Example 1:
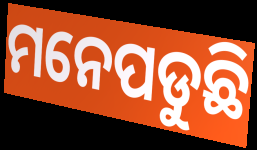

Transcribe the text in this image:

ମନେପଡୁଛି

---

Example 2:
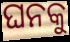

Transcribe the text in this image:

ଘନକୁ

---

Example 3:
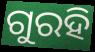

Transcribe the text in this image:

ଗୁରହି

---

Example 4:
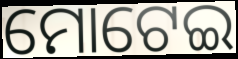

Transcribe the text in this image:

ମୋଟେଇ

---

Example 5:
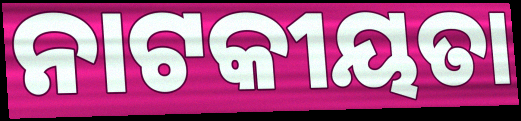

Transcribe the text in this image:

ନାଟକୀୟତା